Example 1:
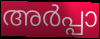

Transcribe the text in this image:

അർപ്പാ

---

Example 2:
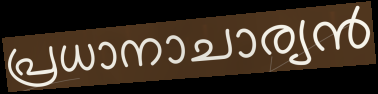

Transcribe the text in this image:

പ്രധാനാചാര്യൻ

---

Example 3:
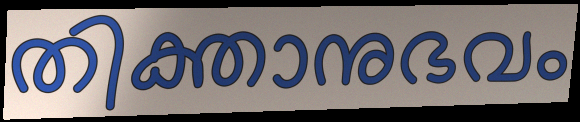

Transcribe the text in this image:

തിക്താനുഭവം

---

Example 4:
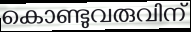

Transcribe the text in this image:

കൊണ്ടുവരുവിന്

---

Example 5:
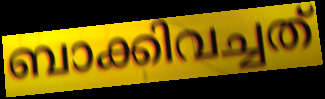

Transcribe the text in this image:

ബാക്കിവച്ചത്